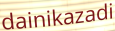
dainikazadi